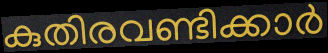
കുതിരവണ്ടിക്കാർ